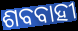
ଶବବାହୀ